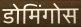
डोमिंगोस